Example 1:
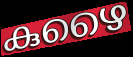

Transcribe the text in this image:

കുഴൈ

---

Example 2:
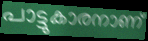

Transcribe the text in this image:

പാട്ടുകാരനാണ്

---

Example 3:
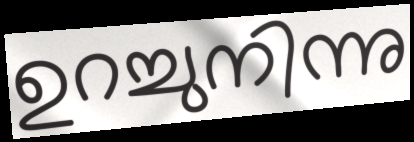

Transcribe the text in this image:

ഉറച്ചുനിന്നു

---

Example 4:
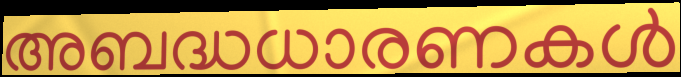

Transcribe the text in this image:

അബദ്ധധാരണകൾ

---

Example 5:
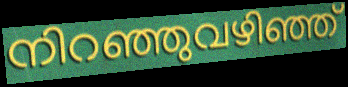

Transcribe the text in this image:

നിറഞ്ഞുവഴിഞ്ഞ്